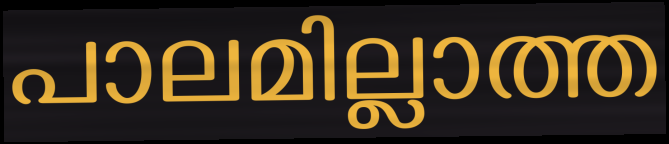
പാലമില്ലാത്ത